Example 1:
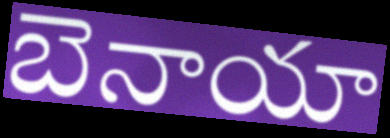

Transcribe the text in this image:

బెనాయా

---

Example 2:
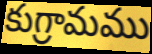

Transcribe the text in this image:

కుగ్రామము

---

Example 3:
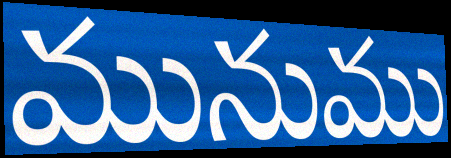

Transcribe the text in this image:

మునుము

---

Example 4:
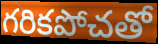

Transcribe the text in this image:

గరికపోచతో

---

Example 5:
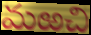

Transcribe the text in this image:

మఱచి